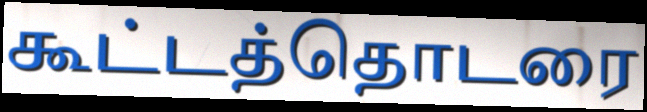
கூட்டத்தொடரை